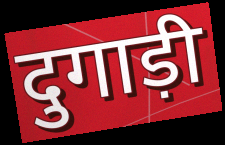
दुगाड़ी